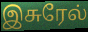
இசுரேல்